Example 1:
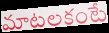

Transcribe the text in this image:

మాటలకంటే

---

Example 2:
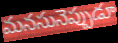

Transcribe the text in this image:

మనసునెప్పుడూ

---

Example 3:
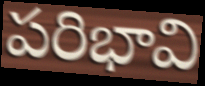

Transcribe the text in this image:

పరిభావి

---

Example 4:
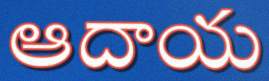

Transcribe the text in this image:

ఆదాయ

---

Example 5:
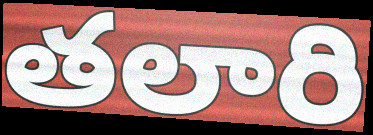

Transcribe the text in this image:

తలారి